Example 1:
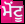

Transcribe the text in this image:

ਮੋਂਟੂ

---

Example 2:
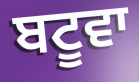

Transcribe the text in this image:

ਬਟੂਵਾ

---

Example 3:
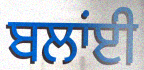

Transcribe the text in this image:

ਬਲਾਂਈ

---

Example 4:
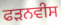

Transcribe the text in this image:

ਫੜਨਵੀਸ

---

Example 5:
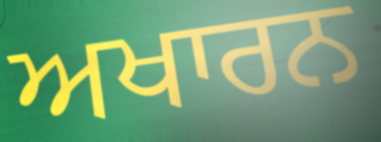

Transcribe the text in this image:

ਅਖਾਰਨ